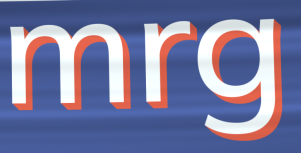
mrg